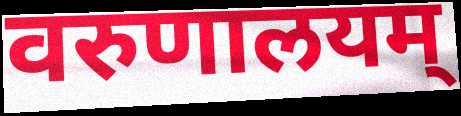
वरुणालयम्